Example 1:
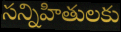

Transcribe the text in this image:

సన్నిహితులకు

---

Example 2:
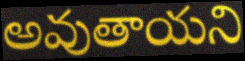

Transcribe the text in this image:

అవుతాయని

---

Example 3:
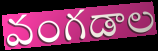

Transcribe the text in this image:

వంగడాల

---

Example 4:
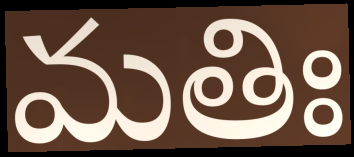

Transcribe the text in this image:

మతిః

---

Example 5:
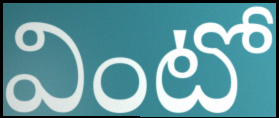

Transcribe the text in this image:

వింటో